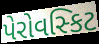
પેરોવસ્કિટ